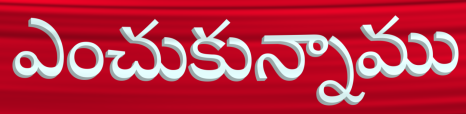
ఎంచుకున్నాము